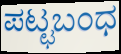
ಪಟ್ಟಬಂಧ